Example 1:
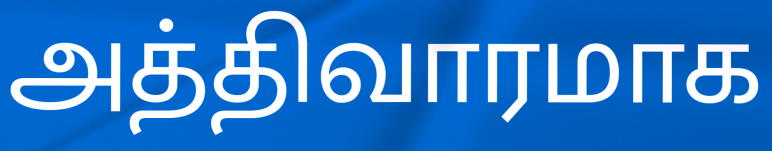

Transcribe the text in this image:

அத்திவாரமாக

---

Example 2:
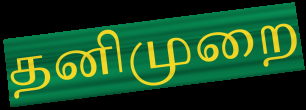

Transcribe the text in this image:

தனிமுறை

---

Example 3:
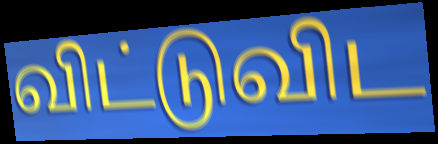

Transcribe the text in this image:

விட்டுவிட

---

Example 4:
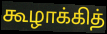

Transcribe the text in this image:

கூழாக்கித்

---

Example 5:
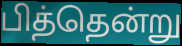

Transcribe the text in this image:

பித்தென்று